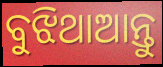
ବୁଝିଥାଆନ୍ତୁ